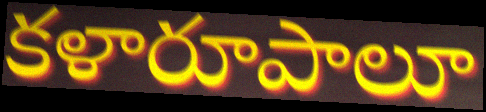
కళారూపాలూ